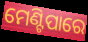
ମେଣ୍ଟିପାରେ